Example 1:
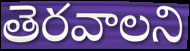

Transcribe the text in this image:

తెరవాలని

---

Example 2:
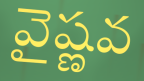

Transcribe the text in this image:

వైష్ణవ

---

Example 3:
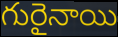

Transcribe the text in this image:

గురైనాయి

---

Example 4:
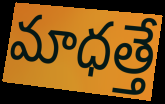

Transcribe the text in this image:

మాధత్తే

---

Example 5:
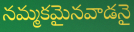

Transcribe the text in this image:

నమ్మకమైనవాడనై